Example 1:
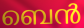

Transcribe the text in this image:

ബെൻ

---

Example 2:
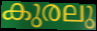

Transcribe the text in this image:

കുരലു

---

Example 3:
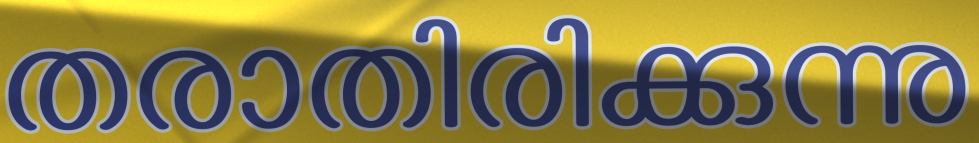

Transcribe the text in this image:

തരാതിരിക്കുന്നു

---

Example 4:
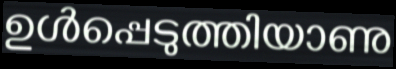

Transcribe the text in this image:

ഉൾപ്പെടുത്തിയാണു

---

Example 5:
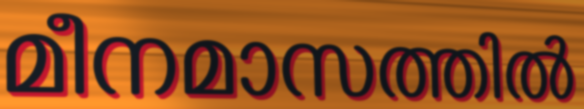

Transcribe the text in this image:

മീനമാസത്തിൽ